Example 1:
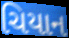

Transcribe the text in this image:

ચિયાન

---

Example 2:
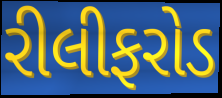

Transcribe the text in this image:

રીલીફરોડ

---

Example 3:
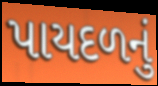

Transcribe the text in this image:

પાયદળનું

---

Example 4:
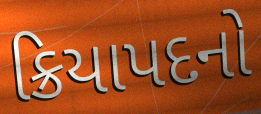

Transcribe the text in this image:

ક્રિયાપદનો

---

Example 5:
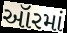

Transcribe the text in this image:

ઑરમાં